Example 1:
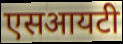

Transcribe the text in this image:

एसआयटी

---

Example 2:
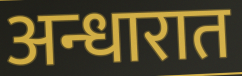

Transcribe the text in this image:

अन्धारात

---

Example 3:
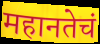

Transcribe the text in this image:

महानतेचं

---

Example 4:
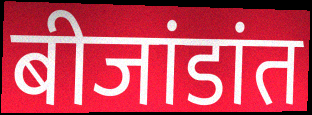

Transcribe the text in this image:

बीजांडांत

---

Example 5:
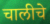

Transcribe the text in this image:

चालीचे